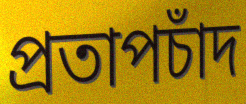
প্রতাপচাঁদ